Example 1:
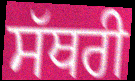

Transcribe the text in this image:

ਸੱਥਰੀ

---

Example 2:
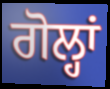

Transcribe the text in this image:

ਗੋਲ੍ਹਾਂ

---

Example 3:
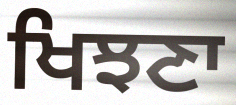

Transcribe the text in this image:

ਖਿਝਣਾ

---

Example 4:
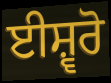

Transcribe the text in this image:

ਈਸ਼੍ਵਰੋ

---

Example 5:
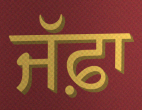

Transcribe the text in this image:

ਜੱਫ਼ਾ